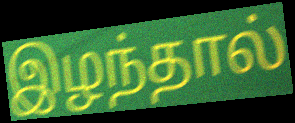
இழந்தால்